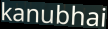
kanubhai